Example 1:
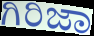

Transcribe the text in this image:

ಗಿರಿಜಾ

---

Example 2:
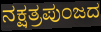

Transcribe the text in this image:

ನಕ್ಷತ್ರಪುಂಜದ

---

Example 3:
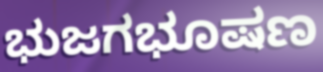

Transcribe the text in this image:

ಭುಜಗಭೂಷಣ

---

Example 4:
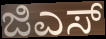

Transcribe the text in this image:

ಜಿಎಸ್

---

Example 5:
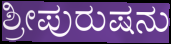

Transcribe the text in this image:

ಶ್ರೀಪುರುಷನು